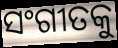
ସଂଗୀତକୁ